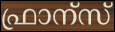
ഫ്രാന്സ്